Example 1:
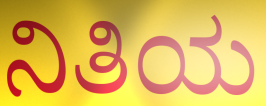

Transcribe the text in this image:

ನಿತಿಯ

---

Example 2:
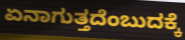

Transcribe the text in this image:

ಏನಾಗುತ್ತದೆಂಬುದಕ್ಕೆ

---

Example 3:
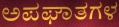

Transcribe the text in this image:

ಅಪಘಾತಗಳ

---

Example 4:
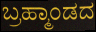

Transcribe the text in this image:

ಬ್ರಹ್ಮಾಂಡದ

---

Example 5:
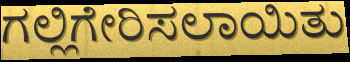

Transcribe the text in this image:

ಗಲ್ಲಿಗೇರಿಸಲಾಯಿತು